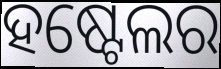
ହଷ୍ଟେଲର